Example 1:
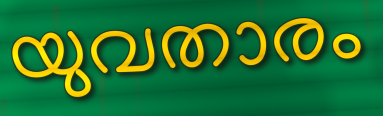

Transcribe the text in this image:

യുവതാരം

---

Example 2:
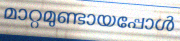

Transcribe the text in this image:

മാറ്റമുണ്ടായപ്പോൾ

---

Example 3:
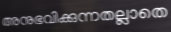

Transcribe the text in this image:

അനുഭവിക്കുന്നതല്ലാതെ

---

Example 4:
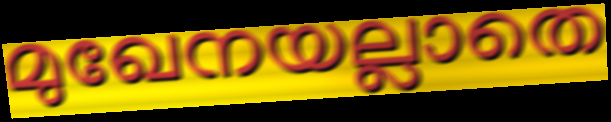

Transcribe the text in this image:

മുഖേനയല്ലാതെ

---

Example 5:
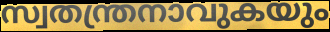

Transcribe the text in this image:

സ്വതന്ത്രനാവുകയും